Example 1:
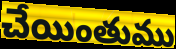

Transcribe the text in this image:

చేయింతుము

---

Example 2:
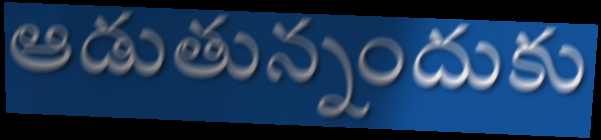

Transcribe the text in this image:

ఆడుతున్నందుకు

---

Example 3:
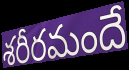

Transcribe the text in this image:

శరీరమందే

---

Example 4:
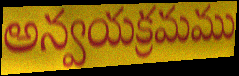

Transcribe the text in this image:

అన్వయక్రమము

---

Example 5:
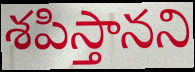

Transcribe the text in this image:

శపిస్తానని